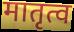
मातृत्व